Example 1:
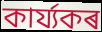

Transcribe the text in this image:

কাৰ্য্যকৰ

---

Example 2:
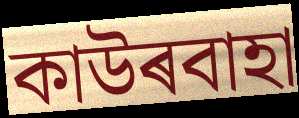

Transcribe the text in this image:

কাউৰবাহা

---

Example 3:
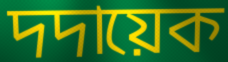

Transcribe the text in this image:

দদায়েক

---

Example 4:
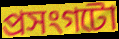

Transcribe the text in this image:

প্ৰসংগটো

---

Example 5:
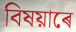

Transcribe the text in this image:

বিষয়াৰে